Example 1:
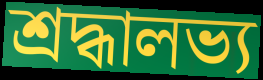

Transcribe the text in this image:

শ্রদ্ধালভ্য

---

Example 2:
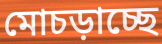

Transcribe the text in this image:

মোচড়াচ্ছে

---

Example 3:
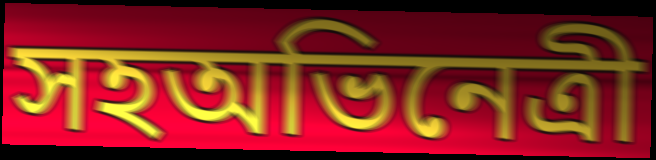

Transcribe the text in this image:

সহঅভিনেত্রী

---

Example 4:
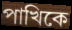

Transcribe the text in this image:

পাখিকে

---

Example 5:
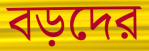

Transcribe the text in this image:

বড়দের